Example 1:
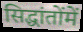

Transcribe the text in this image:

सिद्धांतोंमें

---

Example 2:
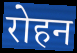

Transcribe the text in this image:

रोहन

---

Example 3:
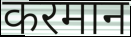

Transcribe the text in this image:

करमान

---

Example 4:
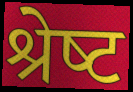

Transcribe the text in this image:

श्रेष्‍ट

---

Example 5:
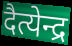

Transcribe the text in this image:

दैत्येन्द्र